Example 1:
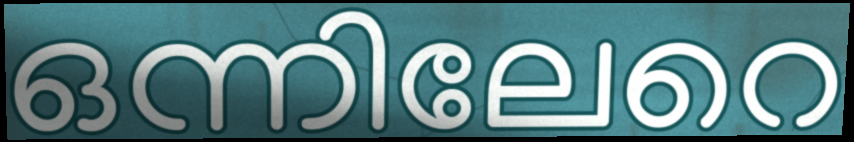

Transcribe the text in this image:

ഒന്നിലേറെ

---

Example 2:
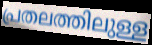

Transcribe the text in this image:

പ്രതലത്തിലുള്ള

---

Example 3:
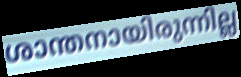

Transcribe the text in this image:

ശാന്തനായിരുന്നില്ല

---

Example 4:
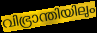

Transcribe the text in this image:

വിഭ്രാന്തിയിലും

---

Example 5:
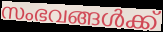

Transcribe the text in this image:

സംഭവങ്ങൾക്ക്